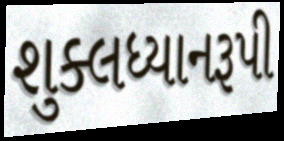
શુક્લધ્યાનરૂપી